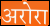
अरोरा